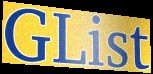
GList